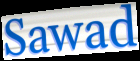
Sawad